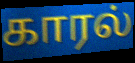
காரல்